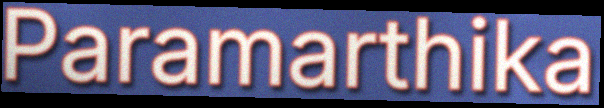
Paramarthika